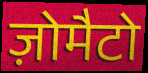
ज़ोमैटो